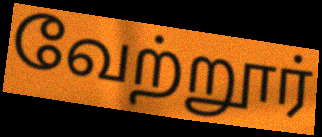
வேற்றூர்